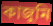
কাজুমি